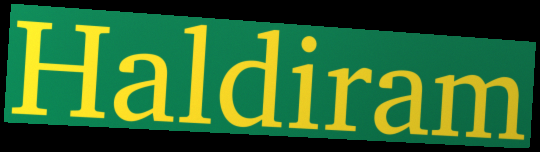
Haldiram